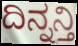
ದಿನ್ನನ್ತಿ